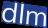
dlm